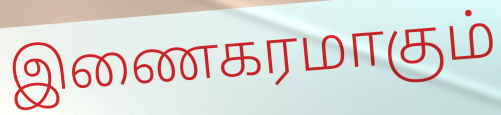
இணைகரமாகும்